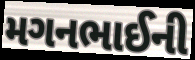
મગનભાઈની